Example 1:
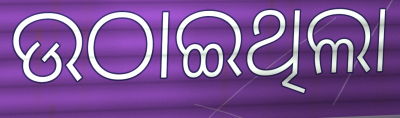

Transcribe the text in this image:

ଉଠାଇଥିଲା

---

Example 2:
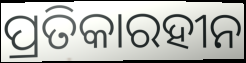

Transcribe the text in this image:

ପ୍ରତିକାରହୀନ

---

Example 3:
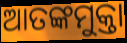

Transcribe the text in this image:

ଆତଙ୍କମୁକ୍ତା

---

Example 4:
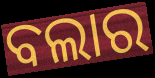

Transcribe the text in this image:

ବଲାର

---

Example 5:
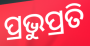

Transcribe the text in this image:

ପ୍ରଭୁପ୍ରତି